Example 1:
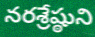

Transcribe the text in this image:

నరశ్రేష్ఠుని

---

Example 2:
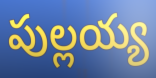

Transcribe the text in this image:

పుల్లయ్య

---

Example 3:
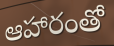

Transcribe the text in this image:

ఆహారంతో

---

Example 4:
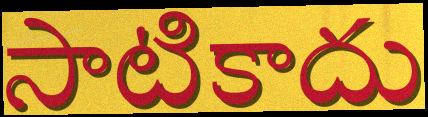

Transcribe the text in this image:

సాటికాదు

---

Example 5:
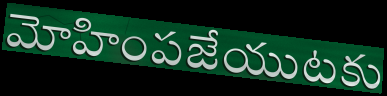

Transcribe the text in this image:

మోహింపజేయుటకు